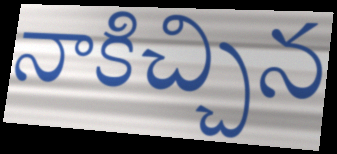
నాకిచ్చిన